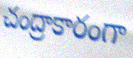
చంద్రాకారంగా